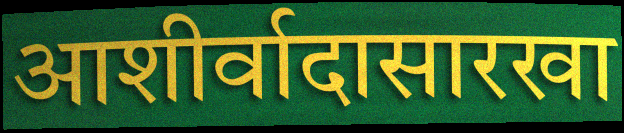
आशीर्वादासारखा